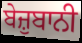
ਬੇਜ਼ੁਬਾਨੀ